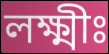
লক্ষ্মীঃ